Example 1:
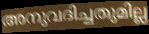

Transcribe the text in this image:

അനുവദിച്ചതുമില്ല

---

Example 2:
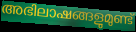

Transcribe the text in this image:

അഭിലാഷങ്ങളുമുണ്ട്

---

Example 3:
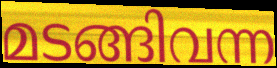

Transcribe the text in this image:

മടങ്ങിവന്ന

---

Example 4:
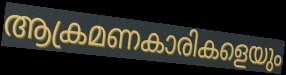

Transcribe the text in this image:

ആക്രമണകാരികളെയും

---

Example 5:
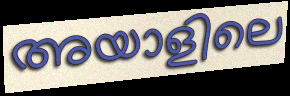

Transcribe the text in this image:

അയാളിലെ